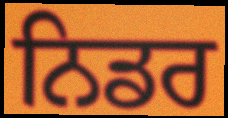
ਨਿਡਰ